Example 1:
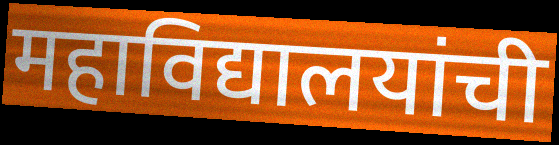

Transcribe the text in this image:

महाविद्यालयांची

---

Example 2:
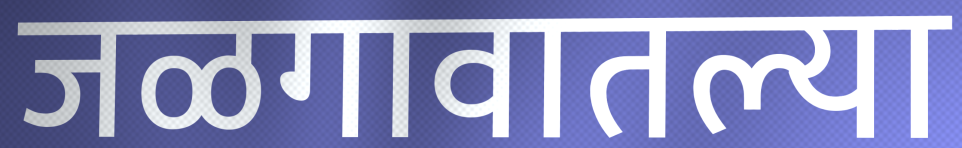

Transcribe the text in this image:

जळगावातल्या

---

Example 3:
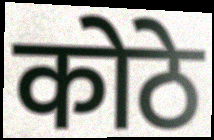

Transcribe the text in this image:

कोठे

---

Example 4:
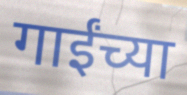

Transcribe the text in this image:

गाईंच्या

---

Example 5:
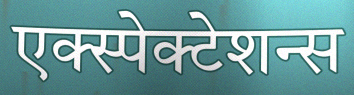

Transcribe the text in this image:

एक्स्पेक्टेशन्स